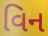
વિન